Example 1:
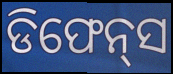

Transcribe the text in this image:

ଡିଫେନ୍‌ସ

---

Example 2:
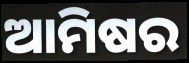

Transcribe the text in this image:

ଆମିଷର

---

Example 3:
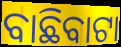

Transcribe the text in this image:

ବାଛିବାଟା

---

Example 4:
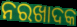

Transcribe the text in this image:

ନରଖାଦକ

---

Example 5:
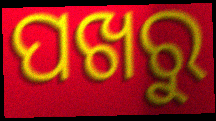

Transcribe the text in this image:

ପଖରୁ